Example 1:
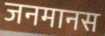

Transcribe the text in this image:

जनमानस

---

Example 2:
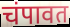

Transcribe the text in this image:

चंपावत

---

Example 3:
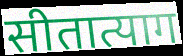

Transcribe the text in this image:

सीतात्याग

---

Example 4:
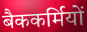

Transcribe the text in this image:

बैककर्मियों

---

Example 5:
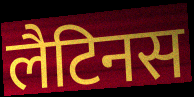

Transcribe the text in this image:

लैटिनस